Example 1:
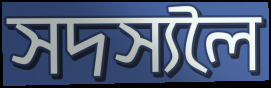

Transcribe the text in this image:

সদস্যলৈ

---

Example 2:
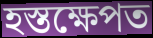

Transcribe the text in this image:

হস্তক্ষেপত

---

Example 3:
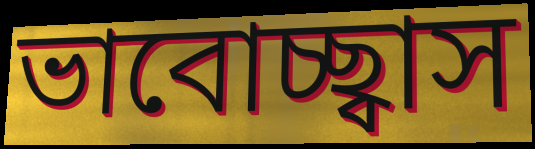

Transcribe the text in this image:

ভাবোচ্ছ্বাস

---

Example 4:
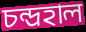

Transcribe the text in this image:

চন্দ্ৰহাল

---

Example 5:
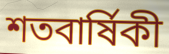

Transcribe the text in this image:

শতবাৰ্ষিকী